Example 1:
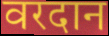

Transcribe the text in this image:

वरदान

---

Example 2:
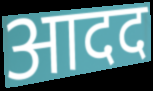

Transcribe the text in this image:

आदद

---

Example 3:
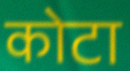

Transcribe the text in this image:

कोटा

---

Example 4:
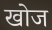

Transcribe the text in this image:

खोज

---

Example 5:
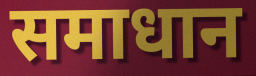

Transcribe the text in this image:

समाधान